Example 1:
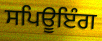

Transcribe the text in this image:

ਸਪਿਊਇੰਗ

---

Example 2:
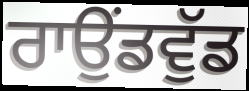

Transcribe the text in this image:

ਰਾਉਂਡਵੁੱਡ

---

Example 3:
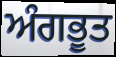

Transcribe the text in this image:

ਅੰਗਭੂਤ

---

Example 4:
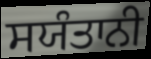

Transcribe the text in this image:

ਸਯੰਤਾਨੀ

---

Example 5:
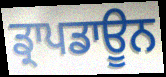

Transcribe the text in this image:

ਡ੍ਰਾਪਡਾਊਨ